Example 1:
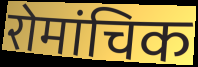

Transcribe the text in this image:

रोमांचिक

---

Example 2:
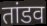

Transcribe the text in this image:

तांडव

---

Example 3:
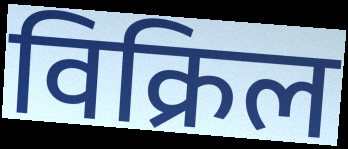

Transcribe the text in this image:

विक्रिल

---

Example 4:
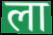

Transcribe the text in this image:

ला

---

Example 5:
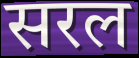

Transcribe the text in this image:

सरल